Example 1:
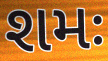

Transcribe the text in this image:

શમઃ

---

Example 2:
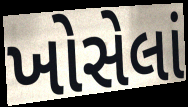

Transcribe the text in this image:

ખોસેલાં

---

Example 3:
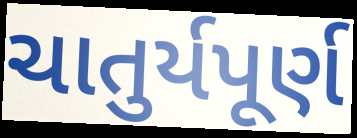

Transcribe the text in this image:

ચાતુર્યપૂર્ણ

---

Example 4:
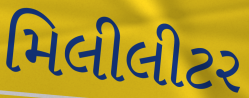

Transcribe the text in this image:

મિલીલીટર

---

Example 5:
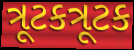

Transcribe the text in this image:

ત્રૂટકત્રૂટક